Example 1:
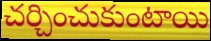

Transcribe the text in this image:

చర్చించుకుంటాయి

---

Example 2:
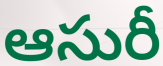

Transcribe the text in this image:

ఆసురీ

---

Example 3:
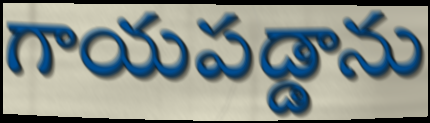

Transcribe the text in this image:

గాయపడ్డాను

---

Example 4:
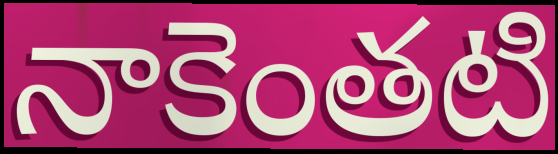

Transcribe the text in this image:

నాకెంతటి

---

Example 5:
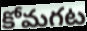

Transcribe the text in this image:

కోమగట